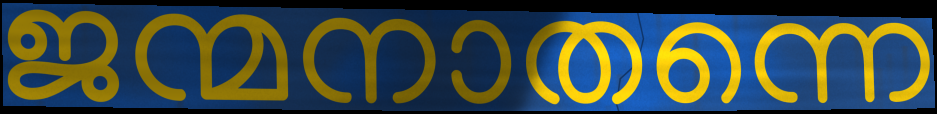
ജന്മനാതന്നെ